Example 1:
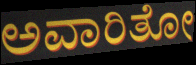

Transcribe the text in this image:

ಅವಾರಿತೋ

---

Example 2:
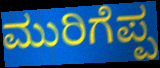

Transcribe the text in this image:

ಮುರಿಗೆಪ್ಪ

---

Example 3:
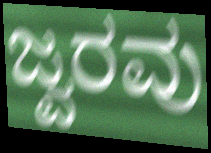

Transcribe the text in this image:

ಜ್ವರವು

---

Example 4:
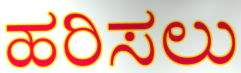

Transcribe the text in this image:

ಹರಿಸಲು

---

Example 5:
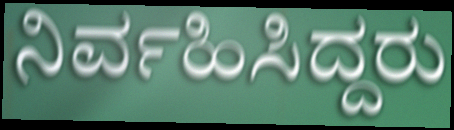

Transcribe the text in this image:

ನಿರ್ವಹಿಸಿದ್ದರು